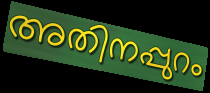
അതിനപ്പുറം